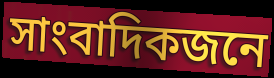
সাংবাদিকজনে